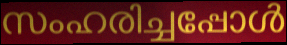
സംഹരിച്ചപ്പോൾ